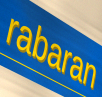
rabaran